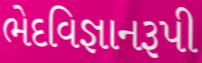
ભેદવિજ્ઞાનરૂપી